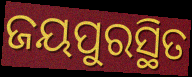
ଜୟପୁରସ୍ଥିତ